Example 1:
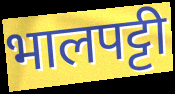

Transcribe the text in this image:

भालपट्टी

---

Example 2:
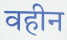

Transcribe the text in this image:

वहीन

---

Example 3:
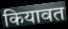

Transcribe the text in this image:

कियावत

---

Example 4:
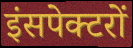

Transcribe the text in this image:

इंसपेक्टरों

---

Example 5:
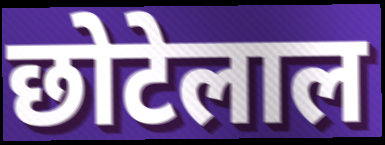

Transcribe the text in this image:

छोटेलाल